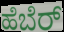
ಹೆಬೆರ್